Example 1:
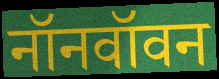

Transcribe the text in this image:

नॉनवॉवन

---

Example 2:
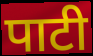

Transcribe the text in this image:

पाटी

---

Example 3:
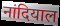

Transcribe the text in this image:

नांदियाल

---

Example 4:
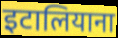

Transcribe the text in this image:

इटालियाना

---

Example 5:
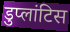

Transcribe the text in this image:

डुप्लांटिस